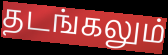
தடங்கலும்